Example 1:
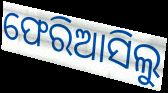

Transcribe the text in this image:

ଫେରିଆସିଲୁ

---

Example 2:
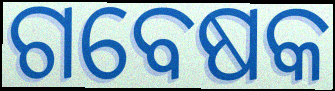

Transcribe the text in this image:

ଗବେଷକ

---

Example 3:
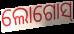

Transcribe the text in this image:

ଲୋଗୋସ୍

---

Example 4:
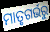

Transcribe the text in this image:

ମାତୃଗର୍ଭରୁ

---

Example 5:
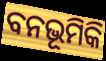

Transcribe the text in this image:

ବନଭୂମିକି